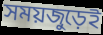
সময়জুড়েই